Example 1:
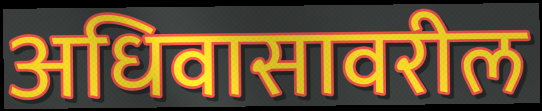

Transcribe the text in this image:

अधिवासावरील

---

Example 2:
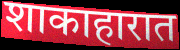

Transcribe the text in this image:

शाकाहारात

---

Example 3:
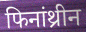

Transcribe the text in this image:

फिनांथ्रीन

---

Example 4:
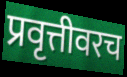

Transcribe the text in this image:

प्रवृत्तीवरच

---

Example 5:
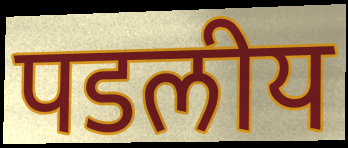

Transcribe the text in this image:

पडलीय